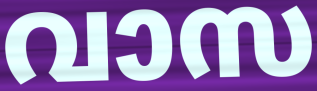
വാസ